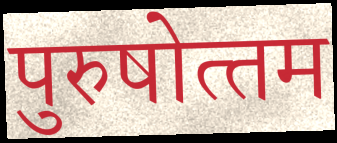
पुरुषोत्‍तम